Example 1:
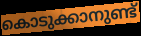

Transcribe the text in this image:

കൊടുക്കാനുണ്ട്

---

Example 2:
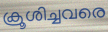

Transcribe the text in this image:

ക്രൂശിച്ചവരെ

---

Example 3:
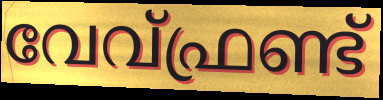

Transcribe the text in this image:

വേവ്ഫ്രണ്ട്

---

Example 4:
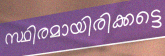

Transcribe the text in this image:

സ്ഥിരമായിരിക്കട്ടെ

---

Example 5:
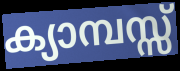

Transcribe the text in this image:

ക്യാമ്പസ്സ്